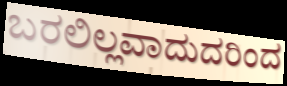
ಬರಲಿಲ್ಲವಾದುದರಿಂದ